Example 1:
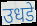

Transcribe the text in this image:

उधडे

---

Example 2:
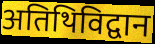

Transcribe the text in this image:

अतिथिविद्वान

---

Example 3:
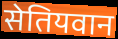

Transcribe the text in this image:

सेतियवान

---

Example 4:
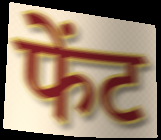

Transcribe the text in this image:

फेंट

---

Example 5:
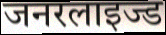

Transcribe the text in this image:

जनरलाइज्ड